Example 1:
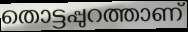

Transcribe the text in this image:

തൊട്ടപ്പുറത്താണ്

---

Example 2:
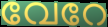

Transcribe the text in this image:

വേറേ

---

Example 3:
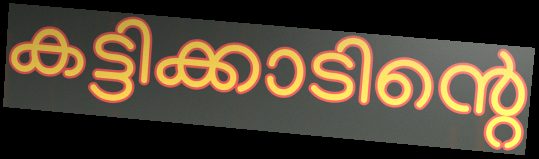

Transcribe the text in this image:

കട്ടിക്കാടിന്റെ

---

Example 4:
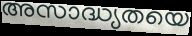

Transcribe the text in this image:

അസാദ്ധ്യതയെ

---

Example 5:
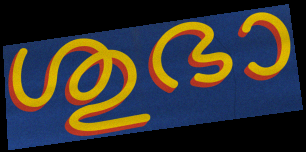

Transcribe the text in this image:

ശുഭാ